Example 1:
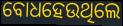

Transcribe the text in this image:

ବୋଧହେଉଥିଲେ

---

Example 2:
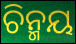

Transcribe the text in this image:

ଚିନ୍ମୟ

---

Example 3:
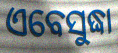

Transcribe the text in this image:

ଏବେସୁଦ୍ଧା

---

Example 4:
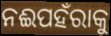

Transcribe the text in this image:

ନଈପହଁରାକୁ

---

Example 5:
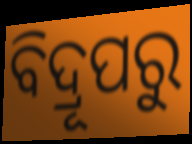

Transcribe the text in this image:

ବିଦ୍ରୂପରୁ